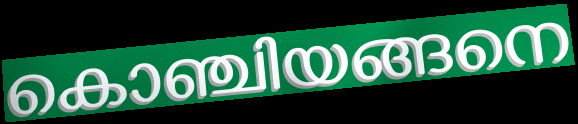
കൊഞ്ചിയങ്ങനെ